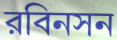
রবিনসন